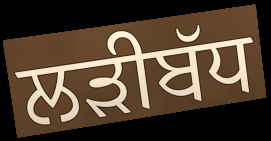
ਲੜੀਬੱਧ